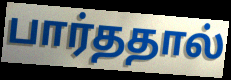
பார்ததால்